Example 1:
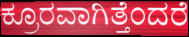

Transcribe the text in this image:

ಕ್ರೂರವಾಗಿತ್ತೆಂದರೆ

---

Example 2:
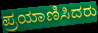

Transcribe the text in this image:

ಪ್ರಯಾಣಿಸಿದರು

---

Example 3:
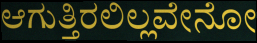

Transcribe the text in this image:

ಆಗುತ್ತಿರಲಿಲ್ಲವೇನೋ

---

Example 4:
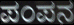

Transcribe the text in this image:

ಪಂಪನ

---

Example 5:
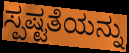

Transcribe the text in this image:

ಸ್ಪಷ್ಟತೆಯನ್ನು